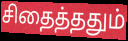
சிதைத்ததும்